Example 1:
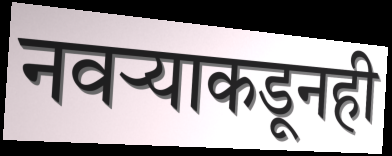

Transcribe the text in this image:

नवऱ्याकडूनही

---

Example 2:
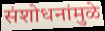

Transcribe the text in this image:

संशोधनांमुळे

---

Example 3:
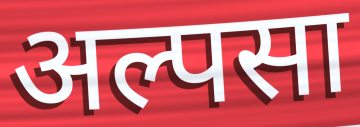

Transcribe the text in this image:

अल्पसा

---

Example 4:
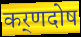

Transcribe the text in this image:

कर्णदोष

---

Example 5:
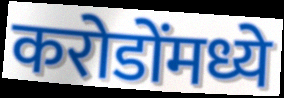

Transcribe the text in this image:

करोडोंमध्ये